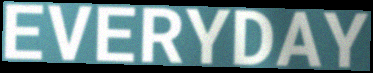
EVERYDAY